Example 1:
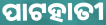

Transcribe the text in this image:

ପାଟହାତୀ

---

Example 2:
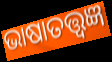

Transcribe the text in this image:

ଭାଷାତତ୍ତ୍ୱଜ୍ଞ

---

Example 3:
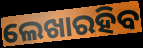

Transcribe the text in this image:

ଲେଖାରହିବ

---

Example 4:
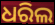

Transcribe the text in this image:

ଧରିଲ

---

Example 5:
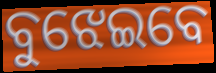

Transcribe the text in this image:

ବୁଝେଇବେ